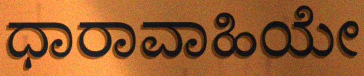
ಧಾರಾವಾಹಿಯೇ